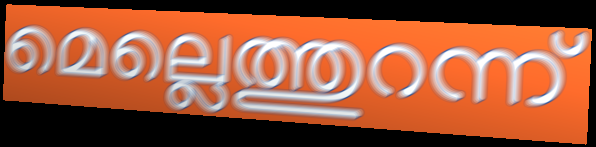
മെല്ലെത്തുറന്ന്